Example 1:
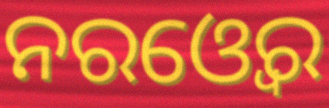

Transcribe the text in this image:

ନରଓ୍ବେର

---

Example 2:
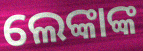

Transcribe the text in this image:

ଲେଙ୍କାଙ୍କ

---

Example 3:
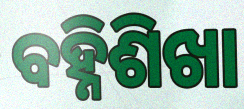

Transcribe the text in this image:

ବହ୍ନିଶିଖା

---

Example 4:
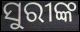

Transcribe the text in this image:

ସୁରୀଙ୍କ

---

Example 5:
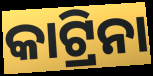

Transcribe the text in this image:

କାଟ୍ରିନା